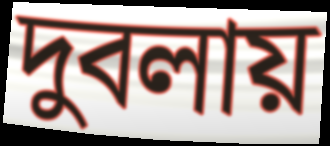
দুবলায়